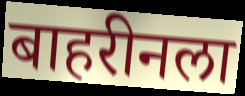
बाहरीनला